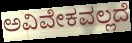
ಅವಿವೇಕವಲ್ಲದೆ